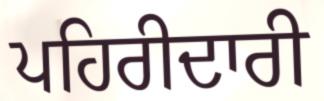
ਪਹਿਰੀਦਾਰੀ